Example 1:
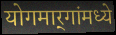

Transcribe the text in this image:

योगमार्गांमध्ये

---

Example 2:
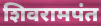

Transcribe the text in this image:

शिवरामपंत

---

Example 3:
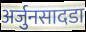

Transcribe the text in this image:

अर्जुनसादडा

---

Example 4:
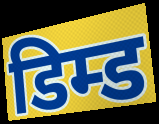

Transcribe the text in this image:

डिम्ड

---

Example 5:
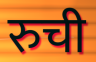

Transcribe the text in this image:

रुची